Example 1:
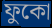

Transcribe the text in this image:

ফুকো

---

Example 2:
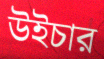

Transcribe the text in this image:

উইচার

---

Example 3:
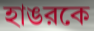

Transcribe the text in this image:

হাঙরকে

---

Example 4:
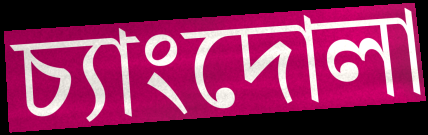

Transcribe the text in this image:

চ্যাংদোলা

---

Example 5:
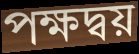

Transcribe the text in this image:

পক্ষদ্বয়